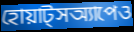
হোয়াট্‌সঅ্যাপেও